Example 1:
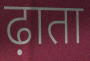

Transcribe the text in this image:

ढ़ाता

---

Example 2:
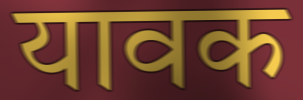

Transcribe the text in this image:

यावक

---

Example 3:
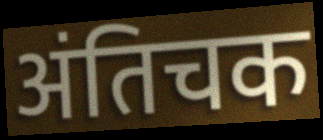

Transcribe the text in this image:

अंतिचक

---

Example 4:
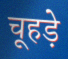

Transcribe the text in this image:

चूहड़े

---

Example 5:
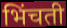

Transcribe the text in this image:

भिंचती